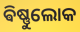
ଵିଷ୍ଣୁଲୋକ